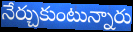
నేర్చుకుంటున్నారు